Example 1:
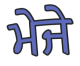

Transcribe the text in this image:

ਮੇਜੇ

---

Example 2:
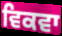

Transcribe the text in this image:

ਵਿਕਵਾ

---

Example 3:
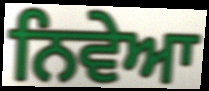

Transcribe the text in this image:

ਨਿਵੇਆ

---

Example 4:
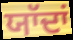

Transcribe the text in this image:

ਯਾੱਦਾਂ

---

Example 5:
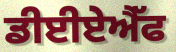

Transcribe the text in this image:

ਡੀਈਏਐੱਫ